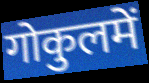
गोकुलमें